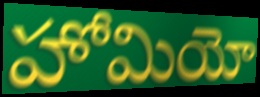
హోమియో